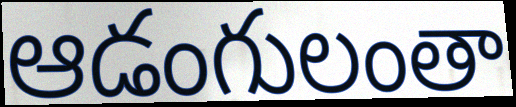
ఆడంగులంతా